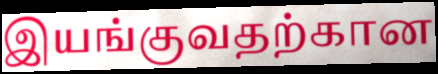
இயங்குவதற்கான